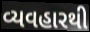
વ્યવહારથી